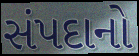
સંપદાનો